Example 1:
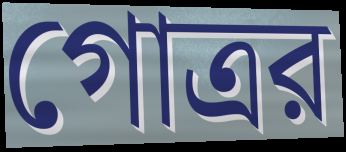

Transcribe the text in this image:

গোত্রর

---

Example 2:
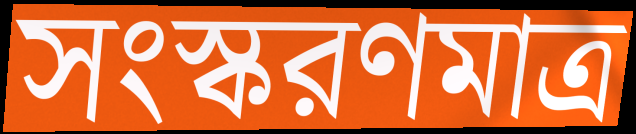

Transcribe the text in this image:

সংস্করণমাত্র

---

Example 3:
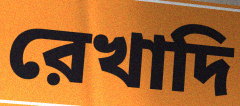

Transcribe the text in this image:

রেখাদি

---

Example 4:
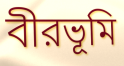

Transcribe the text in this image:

বীরভূমি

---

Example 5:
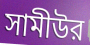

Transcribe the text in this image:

সামীউর